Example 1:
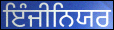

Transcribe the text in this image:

ਇੰਜੀਨਿਯਰ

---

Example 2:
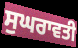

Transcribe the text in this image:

ਸੁਘਰਾਵਤੀ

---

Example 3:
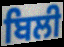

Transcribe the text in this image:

ਬਿਲੀ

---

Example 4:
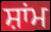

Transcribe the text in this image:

ਸ਼ਾਂਮ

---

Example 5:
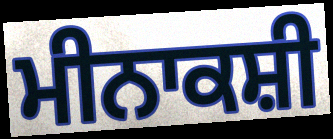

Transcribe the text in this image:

ਮੀਨਾਕਸ਼ੀ